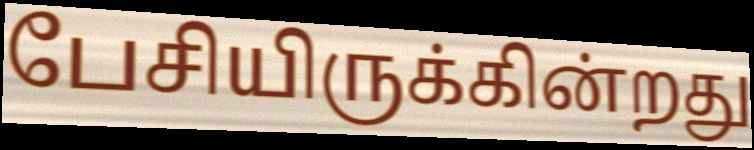
பேசியிருக்கின்றது